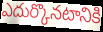
ఎదుర్కొనటానికి